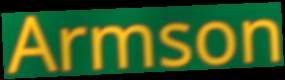
Armson